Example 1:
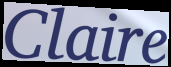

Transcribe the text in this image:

Claire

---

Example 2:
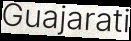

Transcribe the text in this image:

Guajarati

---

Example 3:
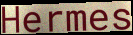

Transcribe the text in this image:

Hermes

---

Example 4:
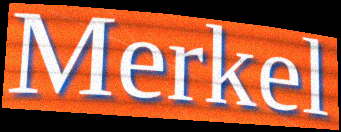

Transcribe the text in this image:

Merkel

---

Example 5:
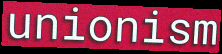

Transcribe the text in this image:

unionism